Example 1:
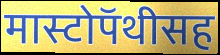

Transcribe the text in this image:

मास्टोपॅथीसह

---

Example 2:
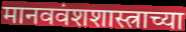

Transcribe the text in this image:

मानववंशशास्त्राच्या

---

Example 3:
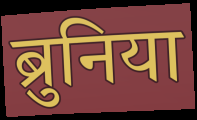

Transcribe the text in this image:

ब्रुनिया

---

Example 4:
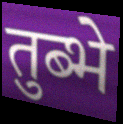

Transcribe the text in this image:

तुब्भे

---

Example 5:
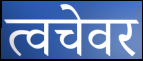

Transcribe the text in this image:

त्वचेवर